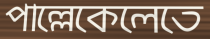
পাল্লেকেলেতে